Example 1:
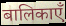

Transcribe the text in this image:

बालिकाएँ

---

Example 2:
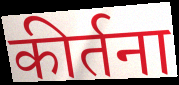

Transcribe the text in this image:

कीर्तना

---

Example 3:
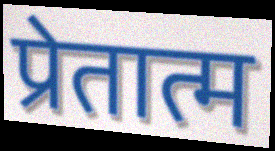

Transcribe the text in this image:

प्रेतात्म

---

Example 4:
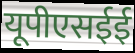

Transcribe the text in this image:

यूपीएसईई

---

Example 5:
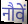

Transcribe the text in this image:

नौवें